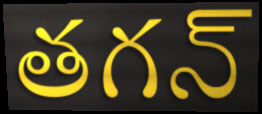
తగన్